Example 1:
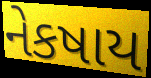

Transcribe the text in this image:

નેકષાય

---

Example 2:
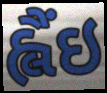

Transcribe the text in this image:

હ્લૈંઇ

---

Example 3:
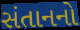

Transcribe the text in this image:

સંતાનનો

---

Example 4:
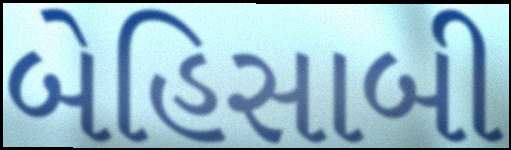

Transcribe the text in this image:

બેહિસાબી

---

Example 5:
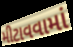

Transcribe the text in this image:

મીટાવવામાં